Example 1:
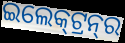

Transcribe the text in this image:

ଇଲେକ୍‍ଟ୍ରନ୍‍ର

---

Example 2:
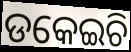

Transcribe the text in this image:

ଡକେଇଚି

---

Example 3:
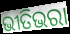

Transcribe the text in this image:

ଭୀତିଭରା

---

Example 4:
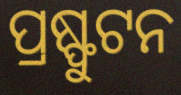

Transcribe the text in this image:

ପ୍ରଷ୍ଫୁଟନ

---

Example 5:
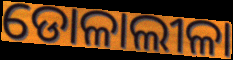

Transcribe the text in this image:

ଡୋଳାଲୀଳା